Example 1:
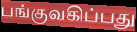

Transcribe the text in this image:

பங்குவகிப்பது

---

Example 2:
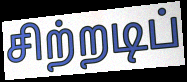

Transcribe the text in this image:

சிற்றடிப்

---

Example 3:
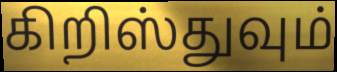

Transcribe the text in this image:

கிறிஸ்துவும்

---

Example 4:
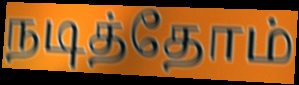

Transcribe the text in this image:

நடித்தோம்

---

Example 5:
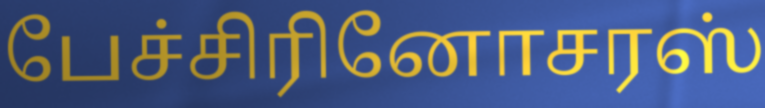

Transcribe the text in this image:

பேச்சிரினோசரஸ்